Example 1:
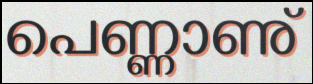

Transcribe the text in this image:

പെണ്ണാണു്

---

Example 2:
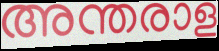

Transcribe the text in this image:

അന്തരാള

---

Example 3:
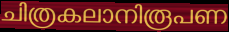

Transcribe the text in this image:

ചിത്രകലാനിരൂപണ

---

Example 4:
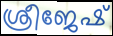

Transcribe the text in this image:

ശ്രീജേഷ്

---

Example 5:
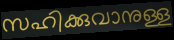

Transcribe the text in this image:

സഹിക്കുവാനുള്ള